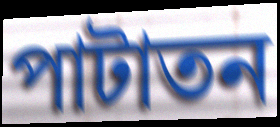
পাটাতন